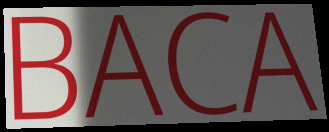
BACA